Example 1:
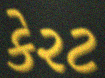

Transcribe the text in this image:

કેરટ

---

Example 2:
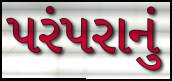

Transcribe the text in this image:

પરંપરાનું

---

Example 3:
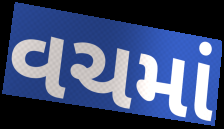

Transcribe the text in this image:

વચમાં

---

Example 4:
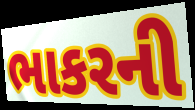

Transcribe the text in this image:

ભાકરની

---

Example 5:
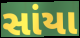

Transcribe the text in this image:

સાંયા